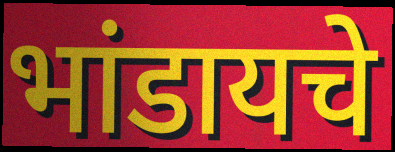
भांडायचे